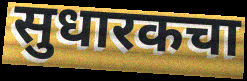
सुधारकचा